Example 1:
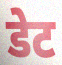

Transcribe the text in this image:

डेट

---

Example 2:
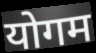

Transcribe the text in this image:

योगम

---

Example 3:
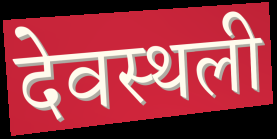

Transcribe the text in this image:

देवस्थली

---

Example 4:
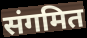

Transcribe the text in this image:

संगमित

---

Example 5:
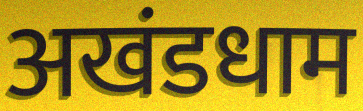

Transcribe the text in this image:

अखंडधाम